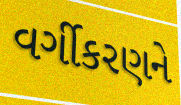
વર્ગીકરણને